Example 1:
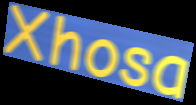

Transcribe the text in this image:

Xhosa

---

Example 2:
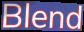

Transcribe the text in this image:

Blend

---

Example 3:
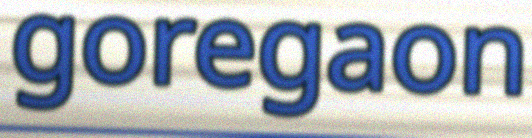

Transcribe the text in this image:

goregaon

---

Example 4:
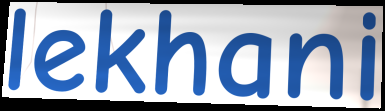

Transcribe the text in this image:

lekhani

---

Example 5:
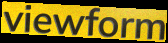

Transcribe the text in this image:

viewform